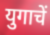
युगाचें